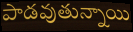
పాడవుతున్నాయి